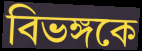
বিভঙ্গকে